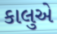
કાલુએ